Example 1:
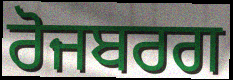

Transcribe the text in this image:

ਰੋਜਬਰਗ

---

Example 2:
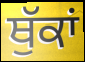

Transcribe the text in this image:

ਥੁੱਕਾਂ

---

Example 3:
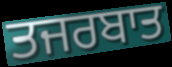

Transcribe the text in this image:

ਤਜਰਬਾਤ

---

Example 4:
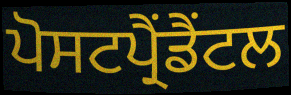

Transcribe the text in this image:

ਪੋਸਟਪ੍ਰੈਂਡੈਂਟਲ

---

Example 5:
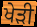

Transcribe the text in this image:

ਖੇੜੀ